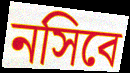
নসিবে